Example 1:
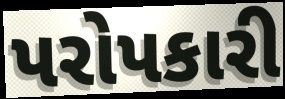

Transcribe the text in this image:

પરોપકારી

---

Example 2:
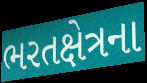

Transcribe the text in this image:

ભરતક્ષેત્રના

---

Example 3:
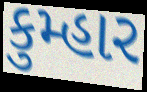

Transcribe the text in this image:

કુમ્હાર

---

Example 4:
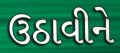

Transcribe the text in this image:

ઉઠાવીને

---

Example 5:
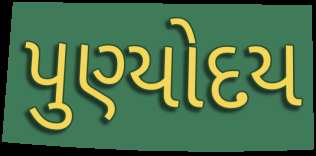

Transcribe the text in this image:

પુણ્યોદય